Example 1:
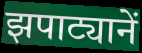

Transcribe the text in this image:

झपाट्यानें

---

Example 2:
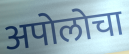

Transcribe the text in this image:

अपोलोचा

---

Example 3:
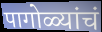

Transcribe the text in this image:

पागोळ्यांचं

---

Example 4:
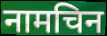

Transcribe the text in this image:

नामचिन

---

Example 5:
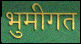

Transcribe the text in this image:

भुमीगत